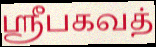
ஸ்ரீபகவத்